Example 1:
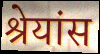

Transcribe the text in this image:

श्रेयांस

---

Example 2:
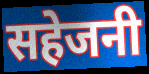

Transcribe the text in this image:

सहेजनी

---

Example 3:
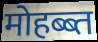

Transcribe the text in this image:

मोहब्ब्त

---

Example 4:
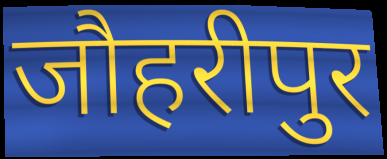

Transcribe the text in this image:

जौहरीपुर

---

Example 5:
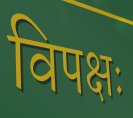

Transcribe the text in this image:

विपक्षः